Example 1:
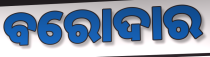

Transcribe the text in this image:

ବରୋଦାର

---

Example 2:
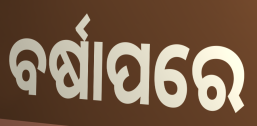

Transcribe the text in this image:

ବର୍ଷାପରେ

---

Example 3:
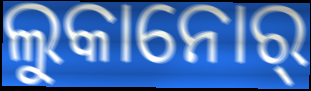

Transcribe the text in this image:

ଲୁକାନୋର୍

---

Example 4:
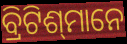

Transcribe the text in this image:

ବ୍ରିଟିଶ୍‌ମାନେ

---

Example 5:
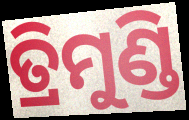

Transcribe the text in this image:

ତ୍ରିମୁଣ୍ଡି